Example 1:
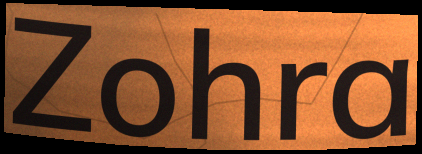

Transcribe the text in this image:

Zohra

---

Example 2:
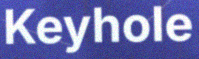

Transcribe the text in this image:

Keyhole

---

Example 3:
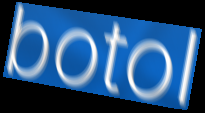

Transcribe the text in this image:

botol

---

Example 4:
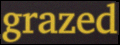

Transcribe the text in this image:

grazed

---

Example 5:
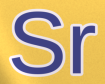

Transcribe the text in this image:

Sr